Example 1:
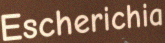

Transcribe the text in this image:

Escherichia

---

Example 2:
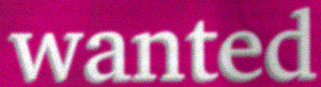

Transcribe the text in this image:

wanted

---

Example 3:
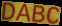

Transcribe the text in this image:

DABC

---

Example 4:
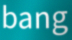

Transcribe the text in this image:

bang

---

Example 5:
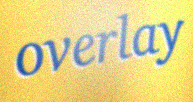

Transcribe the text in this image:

overlay